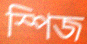
স্পিজ